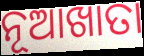
ନୂଆଖାତା